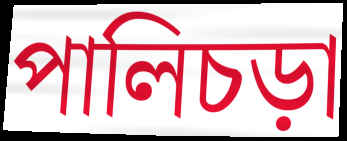
পালিচড়া